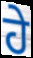
ਹੇ